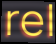
rel